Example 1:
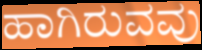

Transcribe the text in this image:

ಹಾಗಿರುವವು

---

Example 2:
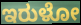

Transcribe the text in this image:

ಇರುಳೋ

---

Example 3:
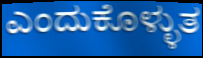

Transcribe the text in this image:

ಎಂದುಕೊಳ್ಳುತ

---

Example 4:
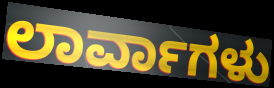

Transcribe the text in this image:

ಲಾರ್ವಾಗಳು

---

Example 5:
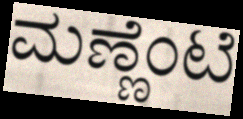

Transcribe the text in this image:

ಮಣ್ಣೆಂಟೆ